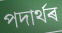
পদাৰ্থৰ